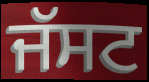
ਜੱਸਟ